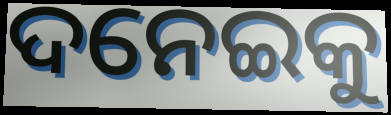
ଦନେଇକୁ